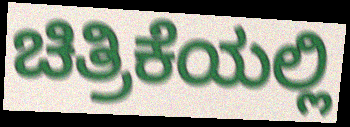
ಚಿತ್ರಿಕೆಯಲ್ಲಿ